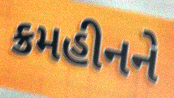
ક્રમહીનને